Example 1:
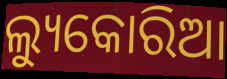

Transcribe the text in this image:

ଲ୍ୟୁକୋରିଆ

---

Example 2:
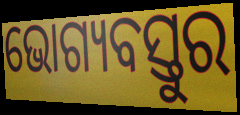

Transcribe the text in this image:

ଭୋଗ୍ୟବସ୍ତୁର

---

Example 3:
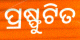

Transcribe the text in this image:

ପ୍ରଷ୍ଫୁଟିତ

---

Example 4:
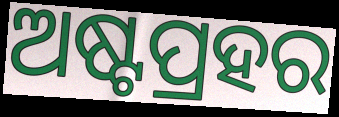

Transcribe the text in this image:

ଅଷ୍ଟପ୍ରହର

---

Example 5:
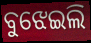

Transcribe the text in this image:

ବୁଝେଇଲି